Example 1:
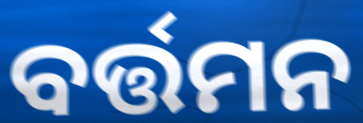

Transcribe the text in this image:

ବର୍ତ୍ତମନ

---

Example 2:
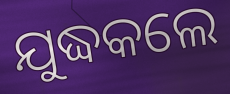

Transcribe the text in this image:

ଯୁଦ୍ଧକଲେ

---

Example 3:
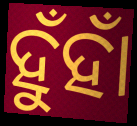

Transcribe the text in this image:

ହୁଁହାଁ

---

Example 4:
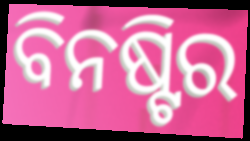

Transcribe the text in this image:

ବିନଷ୍ଟିର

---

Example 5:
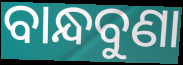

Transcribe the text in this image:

ବାନ୍ଧବୁଣା